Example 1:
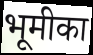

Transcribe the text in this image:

भूमीका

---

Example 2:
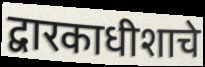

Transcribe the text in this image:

द्वारकाधीशाचे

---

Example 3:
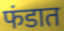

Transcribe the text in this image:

फंडात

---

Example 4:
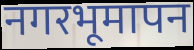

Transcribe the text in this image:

नगरभूमापन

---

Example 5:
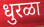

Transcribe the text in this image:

धुरळा